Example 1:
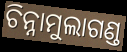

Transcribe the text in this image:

ଚିନ୍ନାମୁଲାଗଣ୍ଡ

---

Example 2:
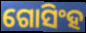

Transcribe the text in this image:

ଗୋସିଂହ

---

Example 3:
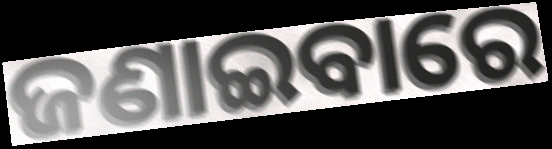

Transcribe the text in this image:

ଜଣାଇବାରେ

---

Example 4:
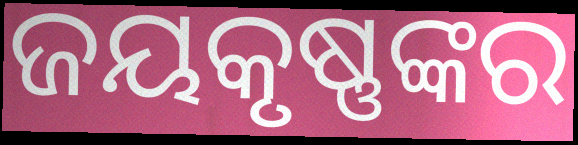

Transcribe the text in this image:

ଜୟକୃଷ୍ଣଙ୍କର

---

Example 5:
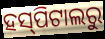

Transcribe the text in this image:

ହସ୍‍ପିଟାଲରୁ